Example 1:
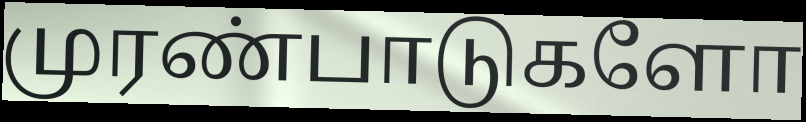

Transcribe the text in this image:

முரண்பாடுகளோ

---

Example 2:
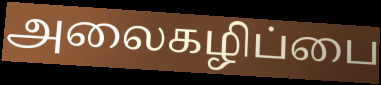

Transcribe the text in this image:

அலைகழிப்பை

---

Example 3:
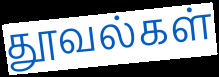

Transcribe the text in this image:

தூவல்கள்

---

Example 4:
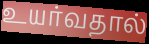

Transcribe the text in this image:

உயர்வதால்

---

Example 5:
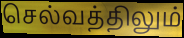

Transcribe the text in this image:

செல்வத்திலும்